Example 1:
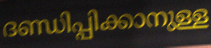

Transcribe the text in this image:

ദണ്ഡിപ്പിക്കാനുള്ള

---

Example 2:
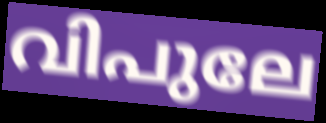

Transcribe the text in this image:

വിപുലേ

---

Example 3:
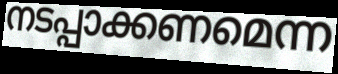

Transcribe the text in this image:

നടപ്പാക്കണമെന്ന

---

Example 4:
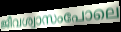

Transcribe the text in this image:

ജീവശ്വാസംപോലെ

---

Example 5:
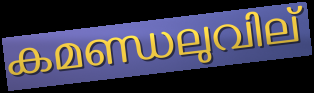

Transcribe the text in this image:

കമണ്ഡലുവില്